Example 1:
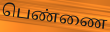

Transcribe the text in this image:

பெண்ணை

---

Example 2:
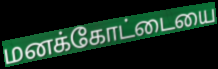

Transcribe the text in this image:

மனக்கோட்டையை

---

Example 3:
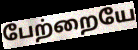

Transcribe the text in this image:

பேற்றையே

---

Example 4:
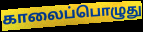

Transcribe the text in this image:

காலைப்பொழுது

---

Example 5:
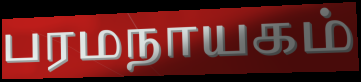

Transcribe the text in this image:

பரமநாயகம்